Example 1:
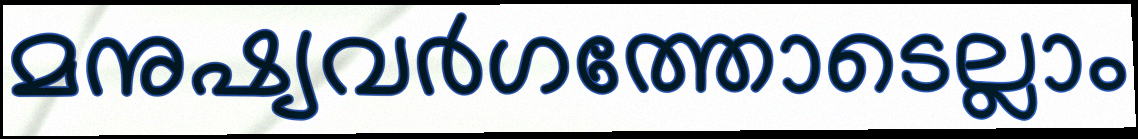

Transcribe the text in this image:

മനുഷ്യവർഗത്തോടെല്ലാം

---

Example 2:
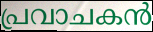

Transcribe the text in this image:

പ്രവാചകൻ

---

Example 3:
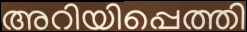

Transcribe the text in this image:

അറിയിപ്പെത്തി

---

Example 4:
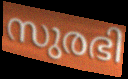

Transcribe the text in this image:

സുരഭി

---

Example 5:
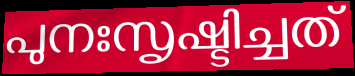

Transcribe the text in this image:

പുനഃസൃഷ്ടിച്ചത്